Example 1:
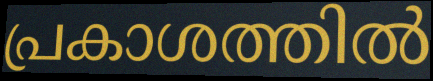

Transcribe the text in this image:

പ്രകാശത്തിൽ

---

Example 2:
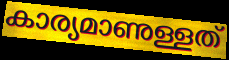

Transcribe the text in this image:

കാര്യമാണുള്ളത്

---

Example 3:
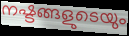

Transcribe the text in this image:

നഷ്ടങ്ങളുടെയും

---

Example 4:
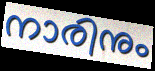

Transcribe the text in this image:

നാരിനും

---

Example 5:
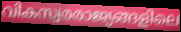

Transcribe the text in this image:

വികസ്വരരാജ്യങ്ങളിലെ